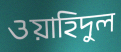
ওয়াহিদুল